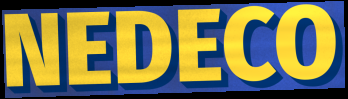
NEDECO